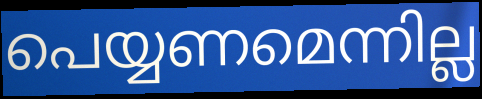
പെയ്യണമെന്നില്ല